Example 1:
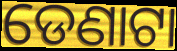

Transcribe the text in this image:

ଡେଣାଟା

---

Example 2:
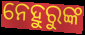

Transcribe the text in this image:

ନେହୁରୁଙ୍କ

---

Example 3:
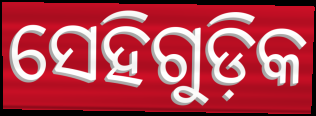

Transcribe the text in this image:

ସେହିଗୁଡ଼ିକ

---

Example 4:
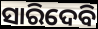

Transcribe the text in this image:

ସାରିଦେବି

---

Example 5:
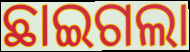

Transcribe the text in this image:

ଛାଇଗଲା